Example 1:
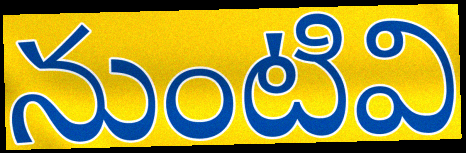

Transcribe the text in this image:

నుంటివి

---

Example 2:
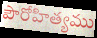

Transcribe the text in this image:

పౌరోహిత్యము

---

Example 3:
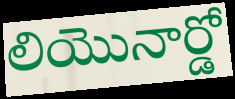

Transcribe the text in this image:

లియొనార్డో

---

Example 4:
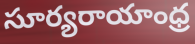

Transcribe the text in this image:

సూర్యరాయాంధ్ర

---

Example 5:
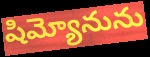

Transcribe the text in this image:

షిమ్యోనును